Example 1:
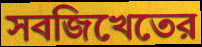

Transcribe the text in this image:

সবজিখেতের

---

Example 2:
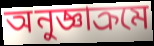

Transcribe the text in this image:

অনুজ্ঞাক্রমে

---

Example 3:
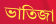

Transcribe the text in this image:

ভাতিজা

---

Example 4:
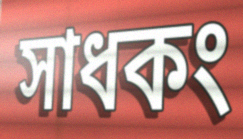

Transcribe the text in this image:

সাধকং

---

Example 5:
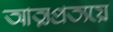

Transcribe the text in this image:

আত্মপ্রত্যয়ে